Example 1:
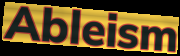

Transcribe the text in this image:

Ableism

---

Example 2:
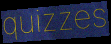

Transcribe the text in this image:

quizzes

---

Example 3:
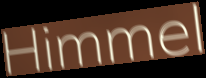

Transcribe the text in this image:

Himmel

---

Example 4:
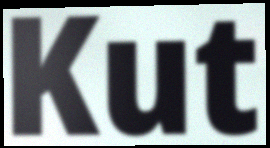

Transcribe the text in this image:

Kut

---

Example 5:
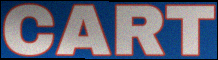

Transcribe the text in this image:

CART